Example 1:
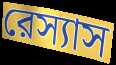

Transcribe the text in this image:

রেস্যাস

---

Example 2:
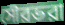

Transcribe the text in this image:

সৌরভরা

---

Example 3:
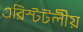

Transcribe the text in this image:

এরিস্টটলীয়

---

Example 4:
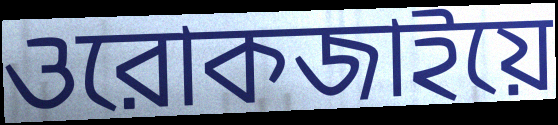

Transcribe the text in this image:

ওরোকজাইয়ে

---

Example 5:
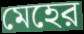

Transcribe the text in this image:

মেহের